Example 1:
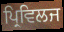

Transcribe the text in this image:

ਪ੍ਰਿਵਿਲਜ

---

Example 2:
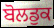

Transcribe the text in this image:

ਬੋਲਡੁਕ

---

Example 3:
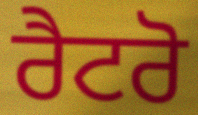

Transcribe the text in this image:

ਰੈਟਰੋ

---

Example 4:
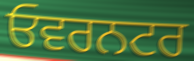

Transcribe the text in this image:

ਓਵਰਨਟਰ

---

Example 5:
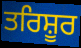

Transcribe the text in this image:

ਤਰਿਸ਼ੂਰ